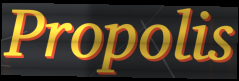
Propolis